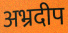
अभ्रदीप